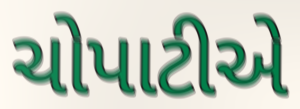
ચોપાટીએ